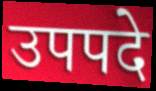
उपपदे